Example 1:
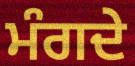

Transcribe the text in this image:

ਮੰਗਦੇ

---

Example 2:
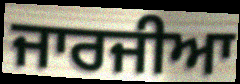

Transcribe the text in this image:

ਜਾਰਜੀਆ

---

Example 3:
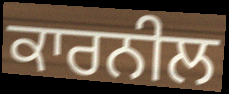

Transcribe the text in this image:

ਕਾਰਨੀਲ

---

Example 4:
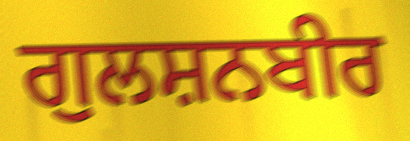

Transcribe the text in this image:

ਗੁਲਸ਼ਨਬੀਰ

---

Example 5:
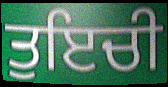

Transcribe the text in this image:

ਤੁਇਚੀ